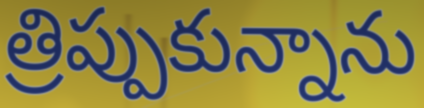
త్రిప్పుకున్నాను